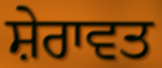
ਸ਼ੇਰਾਵਤ